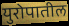
युरोपातील